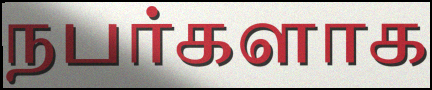
நபர்களாக